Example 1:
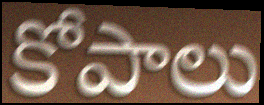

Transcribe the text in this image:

కోపాలు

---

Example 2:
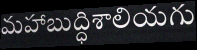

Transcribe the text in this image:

మహాబుద్ధిశాలియగు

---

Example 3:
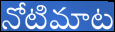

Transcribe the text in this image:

నోటిమాట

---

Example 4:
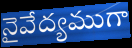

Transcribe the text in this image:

నైవేద్యముగా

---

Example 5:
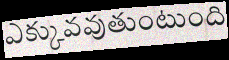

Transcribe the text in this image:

ఎక్కువవుతుంటుంది